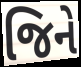
જિને